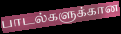
பாடல்களுக்கான